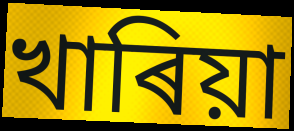
খাৰিয়া